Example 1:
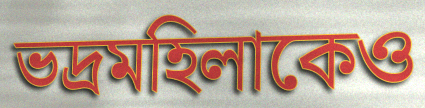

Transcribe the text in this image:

ভদ্রমহিলাকেও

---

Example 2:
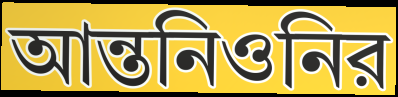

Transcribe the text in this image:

আন্তনিওনির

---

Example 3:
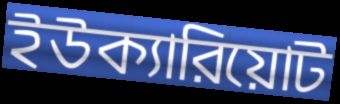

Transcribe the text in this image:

ইউক্যারিয়োট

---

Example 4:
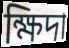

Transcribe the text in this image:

ক্ষিদা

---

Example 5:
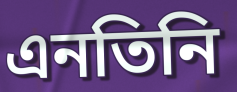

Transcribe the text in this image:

এনতিনি